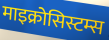
माइक्रोसिस्टम्स